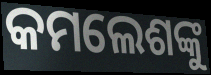
କମଲେଶଙ୍କୁ